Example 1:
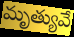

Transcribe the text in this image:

మృత్యువే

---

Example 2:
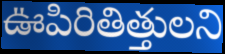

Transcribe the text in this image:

ఊపిరితిత్తులని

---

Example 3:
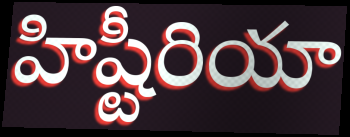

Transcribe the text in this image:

హిష్టీరియా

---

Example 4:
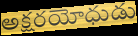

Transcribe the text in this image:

అక్షరయోధుడు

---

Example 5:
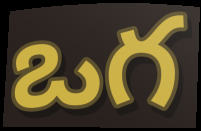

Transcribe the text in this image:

ఒగ